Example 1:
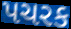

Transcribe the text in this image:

પચરક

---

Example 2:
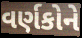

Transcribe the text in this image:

વર્ણકોને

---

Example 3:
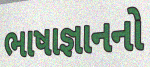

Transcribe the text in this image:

ભાષાજ્ઞાનનો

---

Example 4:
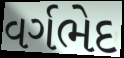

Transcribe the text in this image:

વર્ગભેદ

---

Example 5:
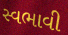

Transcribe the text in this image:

સ્વભાવી